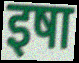
इषा